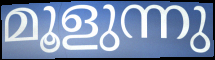
മൂളുന്നു